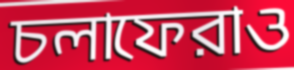
চলাফেরাও